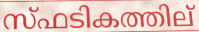
സ്ഫടികത്തില്